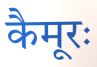
कैमूरः